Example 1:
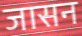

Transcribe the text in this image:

जासन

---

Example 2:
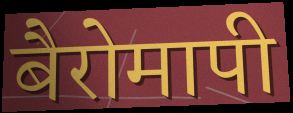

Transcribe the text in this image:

बैरोमापी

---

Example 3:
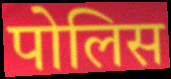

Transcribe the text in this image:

पोलिस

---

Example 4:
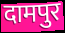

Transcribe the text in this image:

दामपुर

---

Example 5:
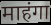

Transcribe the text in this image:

माहंगा